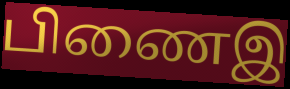
பிணைஇ